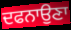
ਦਫਨਾਉਣਾ